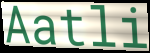
Aatli